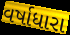
વર્ષાધારા